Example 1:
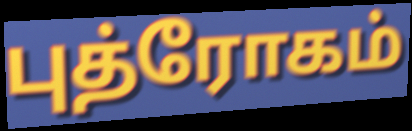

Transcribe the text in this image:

புத்ரோகம்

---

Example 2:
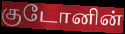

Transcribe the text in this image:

குடோனின்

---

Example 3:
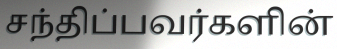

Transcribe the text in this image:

சந்திப்பவர்களின்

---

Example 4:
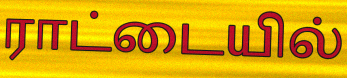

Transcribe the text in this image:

ராட்டையில்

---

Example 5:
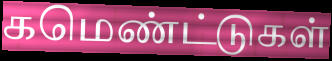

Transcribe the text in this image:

கமெண்ட்டுகள்